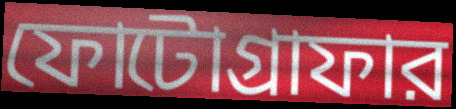
ফোটোগ্রাফার